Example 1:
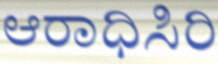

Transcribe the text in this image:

ಆರಾಧಿಸಿರಿ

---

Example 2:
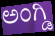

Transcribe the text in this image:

ಅಂಗ್ಡಿ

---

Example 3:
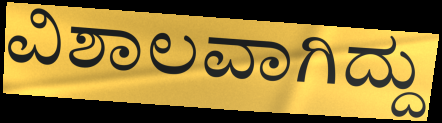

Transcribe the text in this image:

ವಿಶಾಲವಾಗಿದ್ದು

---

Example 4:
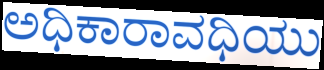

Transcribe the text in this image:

ಅಧಿಕಾರಾವಧಿಯು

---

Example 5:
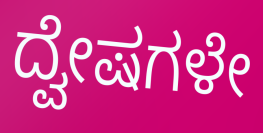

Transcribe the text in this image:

ದ್ವೇಷಗಳೇ